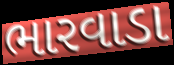
ભારવાડા